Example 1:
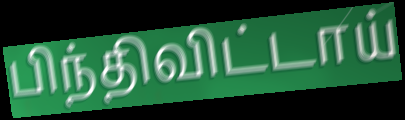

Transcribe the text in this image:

பிந்திவிட்டாய்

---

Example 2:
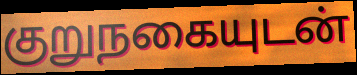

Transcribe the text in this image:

குறுநகையுடன்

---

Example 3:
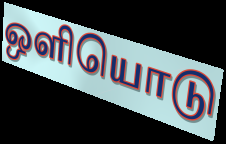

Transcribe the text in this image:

ஒளியொடு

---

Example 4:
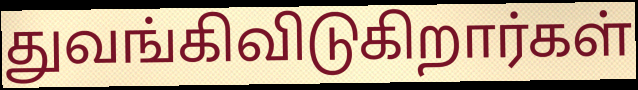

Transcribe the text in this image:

துவங்கிவிடுகிறார்கள்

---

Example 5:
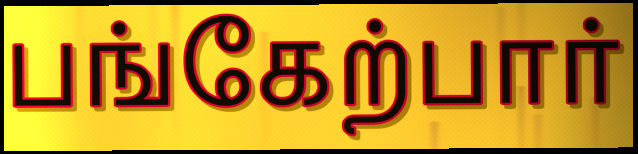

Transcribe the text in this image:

பங்கேற்பார்